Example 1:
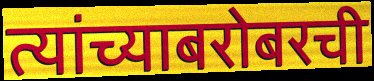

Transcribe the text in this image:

त्यांच्याबरोबरची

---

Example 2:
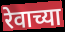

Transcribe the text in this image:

रेवाच्या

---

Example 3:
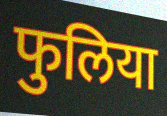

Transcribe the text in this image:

फुलिया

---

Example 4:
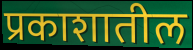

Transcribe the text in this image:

प्रकाशातील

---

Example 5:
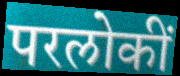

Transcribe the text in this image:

परलोकीं